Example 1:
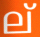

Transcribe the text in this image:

ല്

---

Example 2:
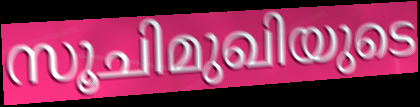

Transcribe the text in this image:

സൂചിമുഖിയുടെ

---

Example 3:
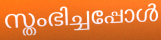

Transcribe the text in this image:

സ്തംഭിച്ചപ്പോൾ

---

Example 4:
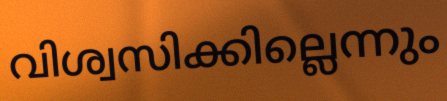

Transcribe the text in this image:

വിശ്വസിക്കില്ലെന്നും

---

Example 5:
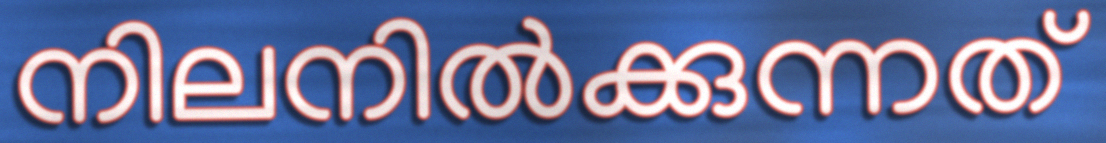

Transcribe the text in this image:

നിലനിൽക്കുന്നത്